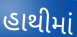
હાથીમાં